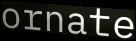
ornate